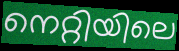
നെറ്റിയിലെ